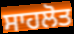
ਸਾਹਲੋਤ